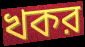
খকর